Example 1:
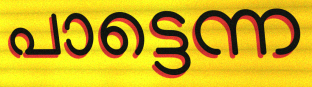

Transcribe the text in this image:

പാട്ടെന്ന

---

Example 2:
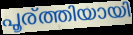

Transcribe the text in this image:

പൂര്ത്തിയായി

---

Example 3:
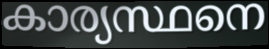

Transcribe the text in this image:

കാര്യസ്ഥനെ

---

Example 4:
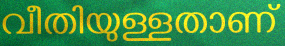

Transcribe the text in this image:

വീതിയുള്ളതാണ്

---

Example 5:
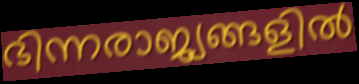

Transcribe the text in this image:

ഭിന്നരാജ്യങ്ങളിൽ